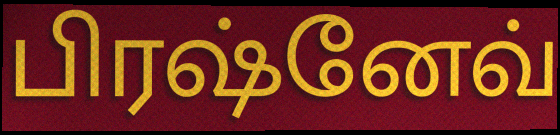
பிரஷ்னேவ்